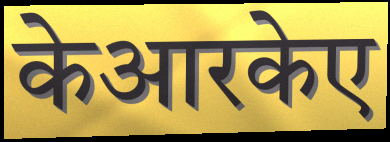
केआरकेए